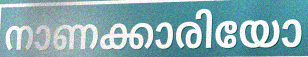
നാണക്കാരിയോ